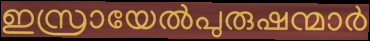
ഇസ്രായേൽപുരുഷന്മാർ